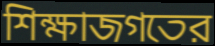
শিক্ষাজগতের